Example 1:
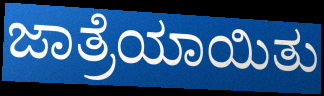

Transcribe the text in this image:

ಜಾತ್ರೆಯಾಯಿತು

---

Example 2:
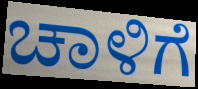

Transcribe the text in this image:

ಚಾಳಿಗೆ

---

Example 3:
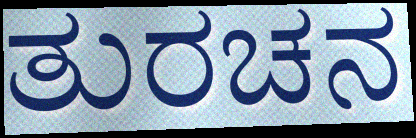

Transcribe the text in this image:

ತುರಚನ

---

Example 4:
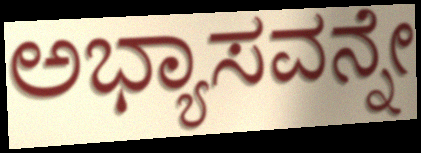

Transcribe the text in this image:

ಅಭ್ಯಾಸವನ್ನೇ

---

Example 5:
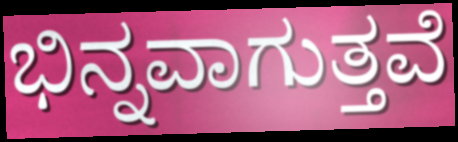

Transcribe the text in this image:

ಭಿನ್ನವಾಗುತ್ತವೆ